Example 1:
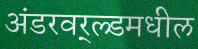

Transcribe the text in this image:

अंडरवर्ल्डमधील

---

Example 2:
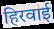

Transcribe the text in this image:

हिरवाई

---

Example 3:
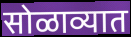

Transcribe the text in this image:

सोळाव्यात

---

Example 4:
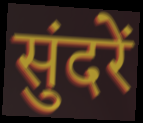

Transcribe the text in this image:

सुंदरें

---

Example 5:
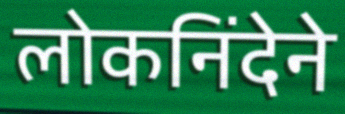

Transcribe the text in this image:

लोकनिंदेने